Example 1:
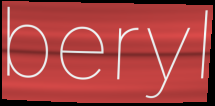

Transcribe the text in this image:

beryl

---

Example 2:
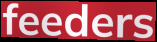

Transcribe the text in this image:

feeders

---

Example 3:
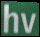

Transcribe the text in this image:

hv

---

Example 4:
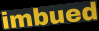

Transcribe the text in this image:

imbued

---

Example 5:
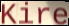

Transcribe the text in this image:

Kire